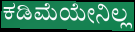
ಕಡಿಮೆಯೇನಿಲ್ಲ